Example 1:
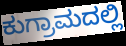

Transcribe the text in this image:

ಕುಗ್ರಾಮದಲ್ಲಿ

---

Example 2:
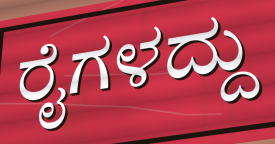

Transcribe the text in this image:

ರೈಗಳದ್ದು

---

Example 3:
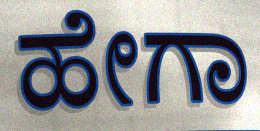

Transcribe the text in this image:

ಹೇಗಾ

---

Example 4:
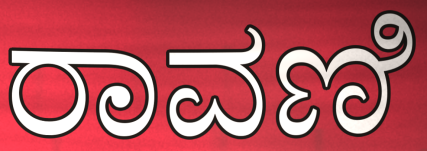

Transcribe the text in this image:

ರಾವಣಿ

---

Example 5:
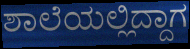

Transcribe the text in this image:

ಶಾಲೆಯಲ್ಲಿದ್ದಾಗ